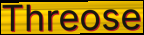
Threose